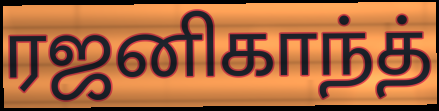
ரஜனிகாந்த்